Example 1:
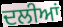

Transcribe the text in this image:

ਦਲੀਆਂ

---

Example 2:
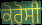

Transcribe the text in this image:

ਕੋਰੋਸੀ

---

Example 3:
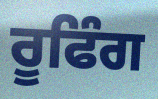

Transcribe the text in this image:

ਰੂਫਿੰਗ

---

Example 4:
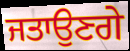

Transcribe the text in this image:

ਜਤਾਉਣਗੇ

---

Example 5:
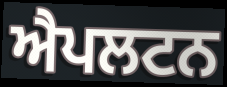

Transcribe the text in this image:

ਐਪਲਟਨ